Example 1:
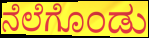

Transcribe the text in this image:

ನೆಲೆಗೊಂಡು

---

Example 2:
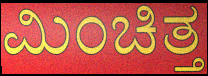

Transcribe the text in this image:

ಮಿಂಚಿತ್ತ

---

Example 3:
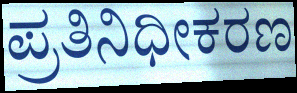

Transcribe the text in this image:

ಪ್ರತಿನಿಧೀಕರಣ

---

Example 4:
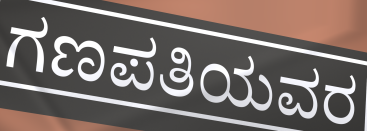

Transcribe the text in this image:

ಗಣಪತಿಯವರ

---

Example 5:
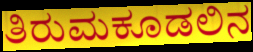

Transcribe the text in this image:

ತಿರುಮಕೂಡಲಿನ